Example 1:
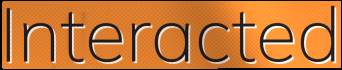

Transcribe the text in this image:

Interacted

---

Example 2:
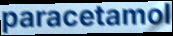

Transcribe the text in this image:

paracetamol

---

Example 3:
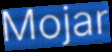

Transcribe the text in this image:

Mojar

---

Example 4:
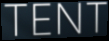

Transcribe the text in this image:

TENT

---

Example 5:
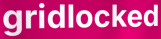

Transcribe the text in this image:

gridlocked